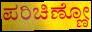
ಪರಿಚಿಣ್ಣೋ